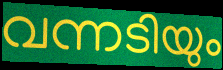
വന്നടിയും